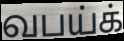
வபய்க்